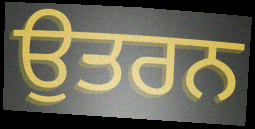
ਉਤਰਨ